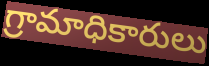
గ్రామాధికారులు